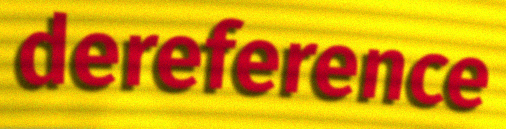
dereference